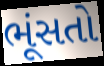
ભૂંસતો